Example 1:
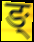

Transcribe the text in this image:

ङ्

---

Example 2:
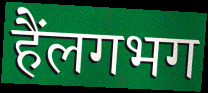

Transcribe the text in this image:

हैंलगभग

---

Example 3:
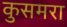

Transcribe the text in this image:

कुसमरा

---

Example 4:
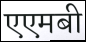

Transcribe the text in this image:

एएमबी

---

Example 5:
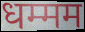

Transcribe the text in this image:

धम्मम